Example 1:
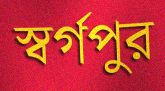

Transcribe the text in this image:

স্বর্গপুর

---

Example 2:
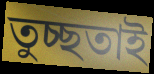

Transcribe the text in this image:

তুচ্ছতাই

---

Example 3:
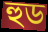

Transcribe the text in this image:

হুড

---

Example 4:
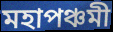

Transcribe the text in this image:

মহাপঞ্চমী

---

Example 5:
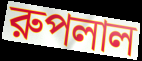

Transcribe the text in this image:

রুপলাল